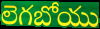
లెగబోయు